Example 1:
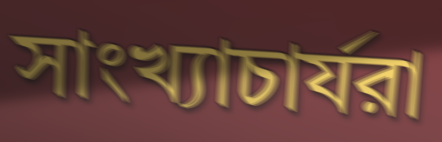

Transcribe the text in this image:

সাংখ্যাচার্যরা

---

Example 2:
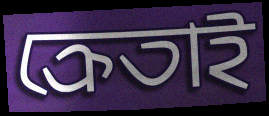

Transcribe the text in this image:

ক্রেতাই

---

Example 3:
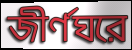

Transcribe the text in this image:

জীর্ণঘরে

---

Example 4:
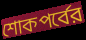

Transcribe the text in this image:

শোকপর্বের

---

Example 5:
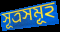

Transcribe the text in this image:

সূত্রসমূহ